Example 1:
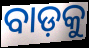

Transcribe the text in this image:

ବାଡ଼କୁ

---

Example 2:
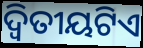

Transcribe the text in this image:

ଦ୍ୱିତୀୟଟିଏ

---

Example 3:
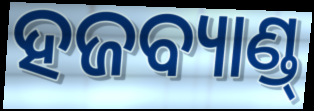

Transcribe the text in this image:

ହଜବ୍ୟାଣ୍ଡ୍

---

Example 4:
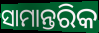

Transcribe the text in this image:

ସାମାନ୍ତରିକ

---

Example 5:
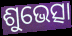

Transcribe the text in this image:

ଶୁଭେତ୍ସା